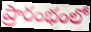
ప్రారంభంలో